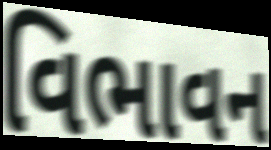
વિભાવન